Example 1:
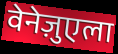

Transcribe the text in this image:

वेनेज़ुएला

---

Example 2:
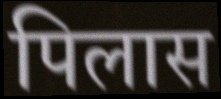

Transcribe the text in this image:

पिलास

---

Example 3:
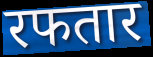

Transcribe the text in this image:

रफतार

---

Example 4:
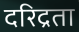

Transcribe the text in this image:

दरिद्रता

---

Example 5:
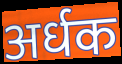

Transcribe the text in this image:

अर्धक